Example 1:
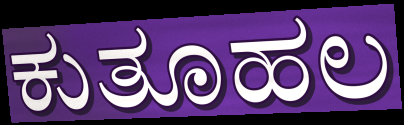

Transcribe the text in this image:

ಕುತೂಹಲ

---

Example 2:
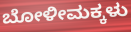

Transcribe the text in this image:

ಬೋಳೀಮಕ್ಕಳು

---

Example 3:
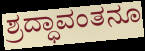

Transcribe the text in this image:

ಶ್ರದ್ಧಾವಂತನೂ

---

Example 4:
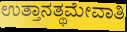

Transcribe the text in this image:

ಉತ್ತಾನತ್ಥಮೇವಾತಿ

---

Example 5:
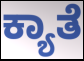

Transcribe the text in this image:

ಕ್ಯಾತೆ